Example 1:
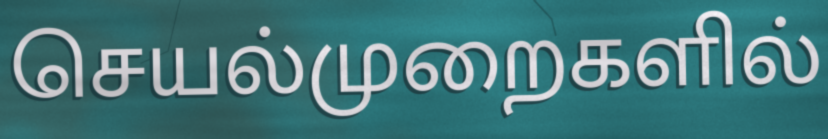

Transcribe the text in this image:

செயல்முறைகளில்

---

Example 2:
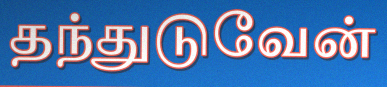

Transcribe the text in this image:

தந்துடுவேன்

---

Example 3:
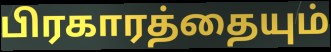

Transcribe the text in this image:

பிரகாரத்தையும்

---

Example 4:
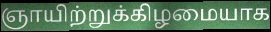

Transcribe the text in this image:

ஞாயிற்றுக்கிழமையாக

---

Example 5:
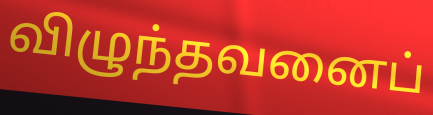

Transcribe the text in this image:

விழுந்தவனைப்